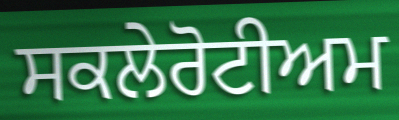
ਸਕਲੇਰੋਟੀਅਮ